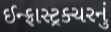
ઈન્ફ્રાસ્ટ્રક્ચરનું